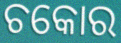
ଚକୋର